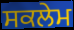
ਸਕਲੇਮ